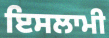
ਇਸਲਾਮੀ